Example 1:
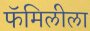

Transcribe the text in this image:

फॅमिलीला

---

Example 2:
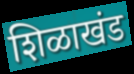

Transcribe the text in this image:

शिळाखंड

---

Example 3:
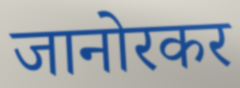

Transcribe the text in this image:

जानोरकर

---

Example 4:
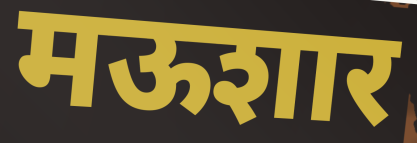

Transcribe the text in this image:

मऊशार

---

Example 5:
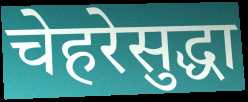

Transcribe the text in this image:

चेहरेसुद्धा